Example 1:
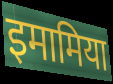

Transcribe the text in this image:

इमामिया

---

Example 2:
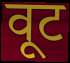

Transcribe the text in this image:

वूट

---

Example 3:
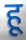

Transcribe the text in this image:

हू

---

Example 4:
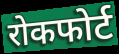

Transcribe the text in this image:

रोकफोर्ट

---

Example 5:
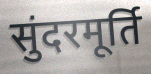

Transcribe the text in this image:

सुंदरमूर्ति